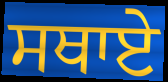
ਸਥਾਏ